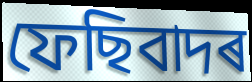
ফেছিবাদৰ